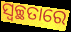
ସ୍ବଚ୍ଛତାରେ